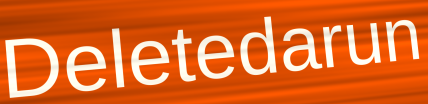
Deletedarun